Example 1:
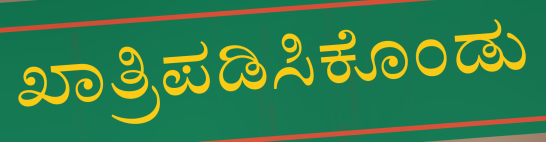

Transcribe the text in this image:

ಖಾತ್ರಿಪಡಿಸಿಕೊಂಡು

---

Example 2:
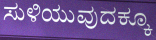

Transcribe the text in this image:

ಸುಳಿಯುವುದಕ್ಕೂ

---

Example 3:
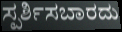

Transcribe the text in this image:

ಸ್ಪರ್ಶಿಸಬಾರದು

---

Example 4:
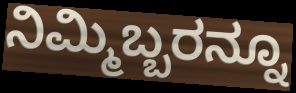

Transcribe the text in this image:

ನಿಮ್ಮಿಬ್ಬರನ್ನೂ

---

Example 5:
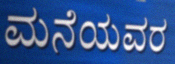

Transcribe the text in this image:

ಮನೆಯವರ